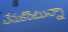
చేసుకొంటున్నా